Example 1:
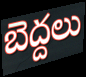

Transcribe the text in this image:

బెద్దలు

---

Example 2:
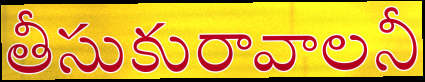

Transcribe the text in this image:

తీసుకురావాలనీ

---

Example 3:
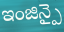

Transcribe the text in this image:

ఇంజిన్పై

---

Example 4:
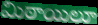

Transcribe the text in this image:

మిఠాయిలూ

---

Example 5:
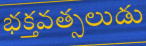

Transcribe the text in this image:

భక్తవత్సలుడు